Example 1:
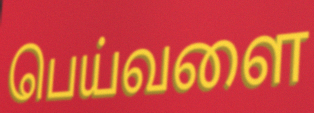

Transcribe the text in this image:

பெய்வளை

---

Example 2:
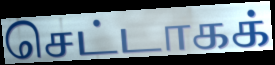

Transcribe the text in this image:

செட்டாகக்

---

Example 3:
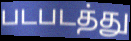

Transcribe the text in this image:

படபடத்து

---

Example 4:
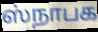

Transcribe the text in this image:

ஸ்நாபக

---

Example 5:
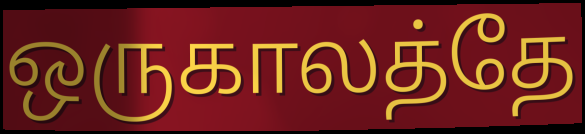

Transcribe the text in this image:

ஒருகாலத்தே